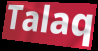
Talaq